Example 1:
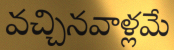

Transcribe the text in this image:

వచ్చినవాళ్లమే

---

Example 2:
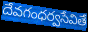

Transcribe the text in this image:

దేవగంధర్వసేవితే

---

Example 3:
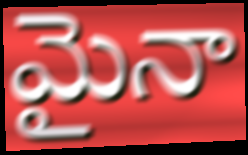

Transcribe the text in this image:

మైనా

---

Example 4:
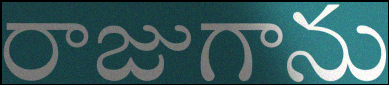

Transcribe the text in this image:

రాజుగాను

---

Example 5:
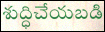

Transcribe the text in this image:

శుద్ధిచేయబడి